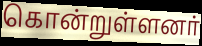
கொன்றுள்ளனர்